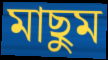
মাছুম